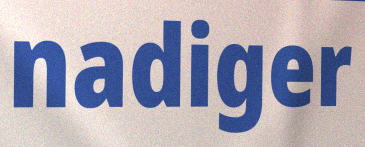
nadiger